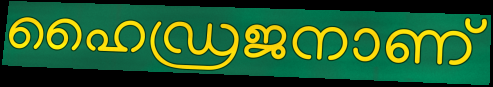
ഹൈഡ്രജനാണ്